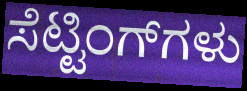
ಸೆಟ್ಟಿಂಗ್‌ಗಳು